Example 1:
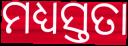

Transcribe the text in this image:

ମଧ୍ୟସ୍ତତା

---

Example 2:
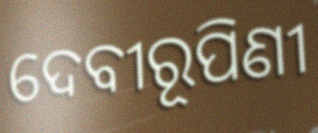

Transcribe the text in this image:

ଦେବୀରୂପିଣୀ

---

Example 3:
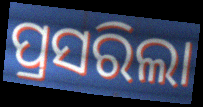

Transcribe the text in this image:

ପ୍ରସରିଲା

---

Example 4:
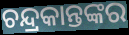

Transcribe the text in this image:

ଚନ୍ଦ୍ରକାନ୍ତଙ୍କର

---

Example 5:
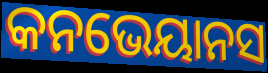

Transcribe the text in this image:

କନଭେୟାନସ